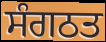
ਸੰਗਠਤ